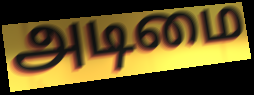
அடிமை